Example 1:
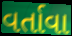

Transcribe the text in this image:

વર્તાવા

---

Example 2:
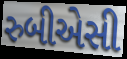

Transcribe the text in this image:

રુબીએસી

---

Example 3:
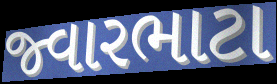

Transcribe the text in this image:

જ્વારભાટા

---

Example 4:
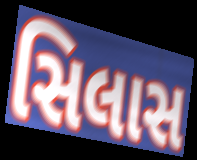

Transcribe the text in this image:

સિલાસ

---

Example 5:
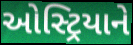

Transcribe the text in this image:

ઓસ્ટ્રિયાને